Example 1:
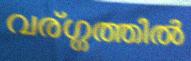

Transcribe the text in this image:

വര്ഗ്ഗത്തിൽ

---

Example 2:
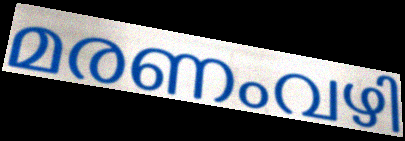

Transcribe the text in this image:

മരണംവഴി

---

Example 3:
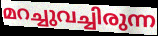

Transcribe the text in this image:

മറച്ചുവച്ചിരുന്ന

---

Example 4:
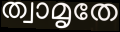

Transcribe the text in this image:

ത്വാമൃതേ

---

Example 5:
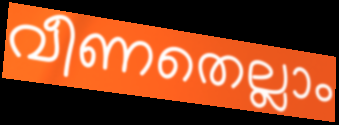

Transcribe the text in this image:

വീണതെല്ലാം